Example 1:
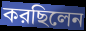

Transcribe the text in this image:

করছিলেন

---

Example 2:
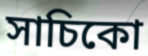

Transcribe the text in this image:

সাচিকো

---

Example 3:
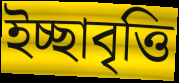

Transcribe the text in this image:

ইচ্ছাবৃত্তি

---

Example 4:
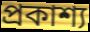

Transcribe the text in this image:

প্রকাশ্য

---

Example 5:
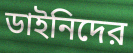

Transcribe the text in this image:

ডাইনিদের